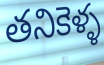
తనికెళ్ళ